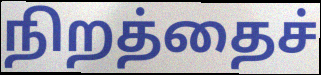
நிறத்தைச்